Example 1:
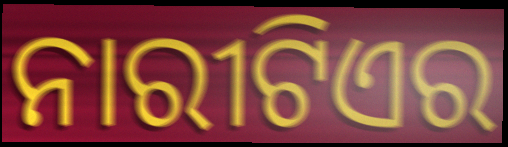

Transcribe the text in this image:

ନାରୀଟିଏର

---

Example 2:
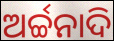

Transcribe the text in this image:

ଅର୍ଚ୍ଚନାଦି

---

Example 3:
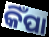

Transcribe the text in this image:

କିଁପା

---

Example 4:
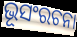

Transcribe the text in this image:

ଭୂସଂରଚନା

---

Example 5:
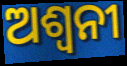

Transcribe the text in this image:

ଅଶ୍ୱନୀ